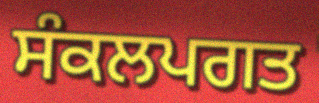
ਸੰਕਲਪਗਤ